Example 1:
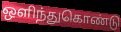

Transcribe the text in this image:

ஒளிந்துகொண்டு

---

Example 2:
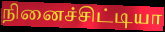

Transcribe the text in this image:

நினைச்சிட்டியா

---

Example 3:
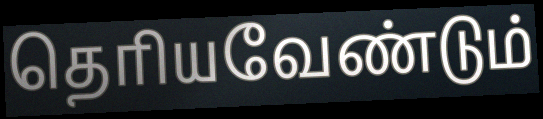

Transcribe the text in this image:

தெரியவேண்டும்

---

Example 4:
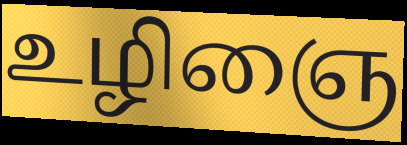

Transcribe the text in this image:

உழிஞை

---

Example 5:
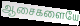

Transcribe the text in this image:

ஆசைகளையே